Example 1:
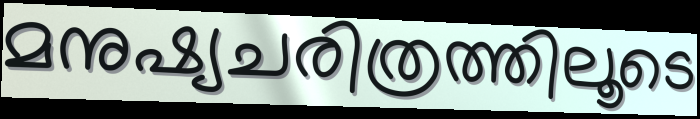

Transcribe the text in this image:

മനുഷ്യചരിത്രത്തിലൂടെ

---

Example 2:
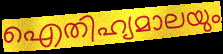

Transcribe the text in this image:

ഐതിഹ്യമാലയും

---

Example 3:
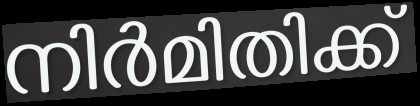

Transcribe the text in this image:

നിർമിതിക്ക്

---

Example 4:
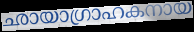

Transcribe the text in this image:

ഛായാഗ്രാഹകനായ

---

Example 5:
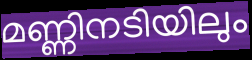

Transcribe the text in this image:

മണ്ണിനടിയിലും